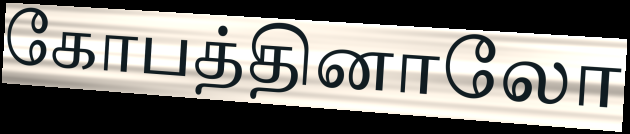
கோபத்தினாலோ